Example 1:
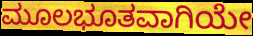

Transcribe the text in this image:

ಮೂಲಭೂತವಾಗಿಯೇ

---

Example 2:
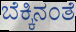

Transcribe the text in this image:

ಬೆಕ್ಕಿನಂತೆ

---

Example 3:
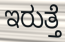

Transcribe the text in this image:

ಇರುತ್ತೆ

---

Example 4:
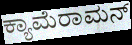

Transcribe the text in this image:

ಕ್ಯಾಮೆರಾಮನ್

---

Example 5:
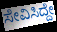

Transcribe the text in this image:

ಸೇವಿಸಿದ್ದೇ